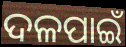
ଦଳପାଇଁ